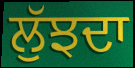
ਲੁੱਝਦਾ